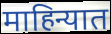
माहिन्यात